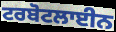
ਟਰਬੋਟਲਾਈਨ